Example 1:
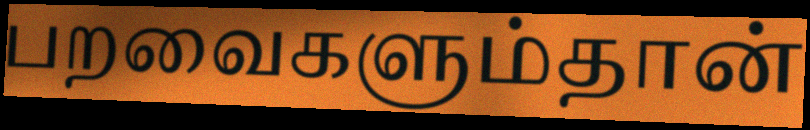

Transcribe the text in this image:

பறவைகளும்தான்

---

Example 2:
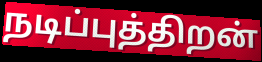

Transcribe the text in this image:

நடிப்புத்திறன்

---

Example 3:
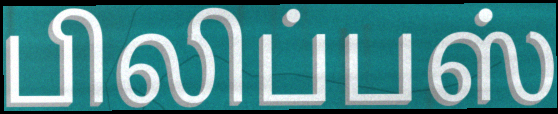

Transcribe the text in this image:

பிலிப்பஸ்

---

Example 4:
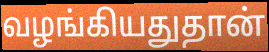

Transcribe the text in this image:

வழங்கியதுதான்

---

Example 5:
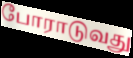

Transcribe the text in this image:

போராடுவது